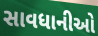
સાવધાનીઓ